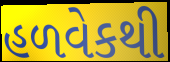
હળવેકથી